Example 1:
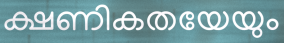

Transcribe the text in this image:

ക്ഷണികതയേയും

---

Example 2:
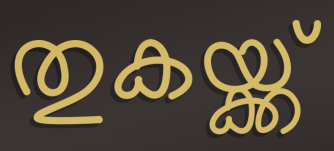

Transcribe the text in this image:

തുകയ്ക്ക്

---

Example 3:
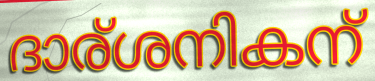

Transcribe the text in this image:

ദാര്ശനികന്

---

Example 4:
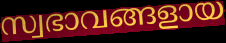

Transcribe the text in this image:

സ്വഭാവങ്ങളായ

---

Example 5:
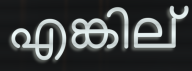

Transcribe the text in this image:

എങ്കില്